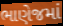
ભાણેજમાં